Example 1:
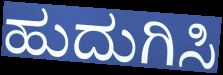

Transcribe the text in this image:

ಹುದುಗಿಸಿ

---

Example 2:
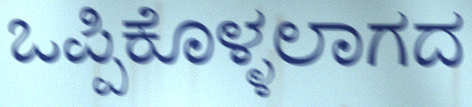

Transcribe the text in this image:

ಒಪ್ಪಿಕೊಳ್ಳಲಾಗದ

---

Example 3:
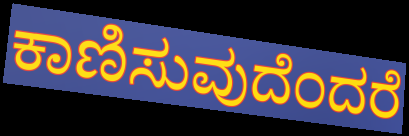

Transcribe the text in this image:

ಕಾಣಿಸುವುದೆಂದರೆ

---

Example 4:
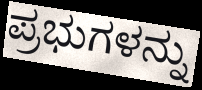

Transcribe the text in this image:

ಪ್ರಭುಗಳನ್ನು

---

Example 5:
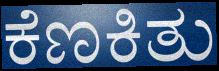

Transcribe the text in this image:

ಕೆಣಕಿತು